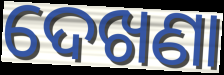
ଦେଖଣା